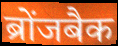
ब्रोंजबैक